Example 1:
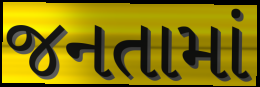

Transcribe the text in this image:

જનતામાં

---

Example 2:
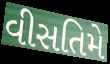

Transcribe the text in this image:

વીસતિમે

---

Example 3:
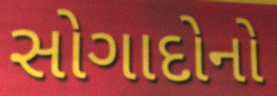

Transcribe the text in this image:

સોગાદોનો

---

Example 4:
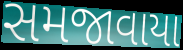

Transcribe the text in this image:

સમજાવાયા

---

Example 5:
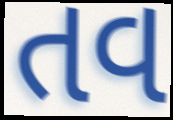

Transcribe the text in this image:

તવ